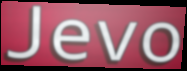
Jevo